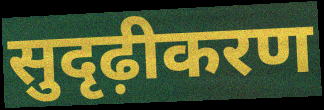
सुदृढ़ीकरण